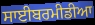
ਸਾਈਬਰਮੀਡੀਆ